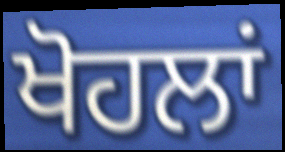
ਖੋਹਲਾਂ